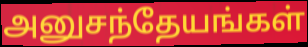
அனுசந்தேயங்கள்